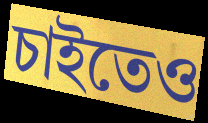
চাইতেও